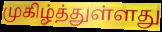
முகிழ்த்துள்ளது